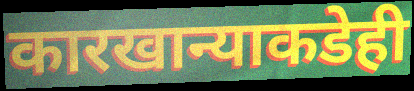
कारखान्याकडेही